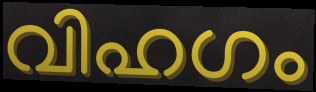
വിഹഗം